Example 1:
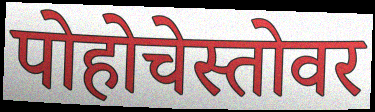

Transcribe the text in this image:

पोहोचेस्तोवर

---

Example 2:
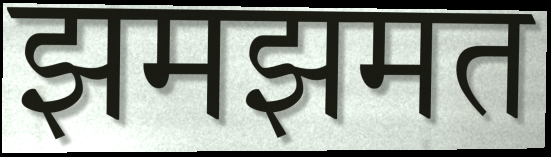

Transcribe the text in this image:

झमझमत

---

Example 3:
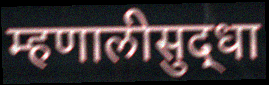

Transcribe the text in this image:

म्हणालीसुद्धा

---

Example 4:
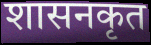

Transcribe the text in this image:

शासनकृत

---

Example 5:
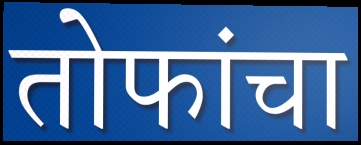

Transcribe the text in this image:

तोफांचा